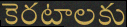
కెరటాలకు